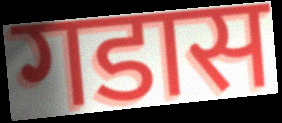
गडास